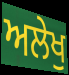
ਅਲੇਖੁ